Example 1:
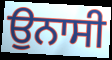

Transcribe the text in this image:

ਉਨਾਸੀ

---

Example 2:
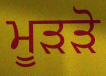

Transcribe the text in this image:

ਮੂੜੜੋ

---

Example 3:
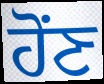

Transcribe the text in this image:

ਹੋਂਣ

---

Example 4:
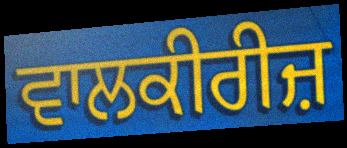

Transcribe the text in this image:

ਵਾਲਕੀਰੀਜ਼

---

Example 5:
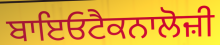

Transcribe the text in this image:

ਬਾਇਓਟੈਕਨਾਲੋਜ਼ੀ